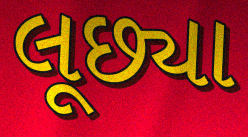
લૂછ્યા